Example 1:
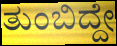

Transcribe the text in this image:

ತುಂಬಿದ್ದೇ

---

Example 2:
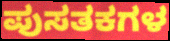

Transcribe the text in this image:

ಪುಸತಕಗಳ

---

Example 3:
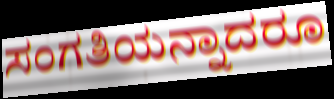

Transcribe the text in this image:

ಸಂಗತಿಯನ್ನಾದರೂ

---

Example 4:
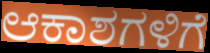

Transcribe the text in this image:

ಆಕಾಶಗಳಿಗೆ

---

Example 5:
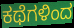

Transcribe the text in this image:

ಕಥೆಗಳಿಂದ